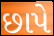
છાપે